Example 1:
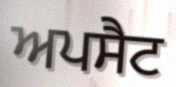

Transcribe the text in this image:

ਅਪਸੈਟ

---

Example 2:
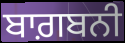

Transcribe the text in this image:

ਬਾਗ਼ਬਨੀ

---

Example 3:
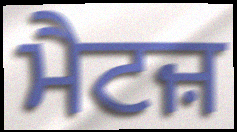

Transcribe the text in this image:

ਮੈਟਜ਼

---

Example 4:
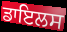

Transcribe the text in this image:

ਡਾਇਲਸ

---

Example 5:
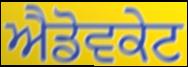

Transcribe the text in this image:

ਐਡੋਵਕੇਟ